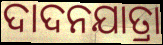
ଦାଦନଯାତ୍ରା